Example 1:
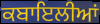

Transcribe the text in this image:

ਕਬਾਇਲੀਆਂ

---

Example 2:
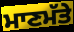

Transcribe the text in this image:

ਮਾਣਮੱਤੇ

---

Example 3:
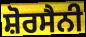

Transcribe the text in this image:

ਸ਼ੋਰਸੈਨੀ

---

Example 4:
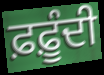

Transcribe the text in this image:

ਫ਼ਫ਼ੂੰਦੀ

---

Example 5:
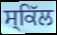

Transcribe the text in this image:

ਸ੍ਕਿੱਲ